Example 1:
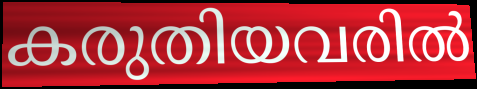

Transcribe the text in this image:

കരുതിയവരിൽ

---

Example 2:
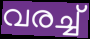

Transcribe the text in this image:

വരച്ച്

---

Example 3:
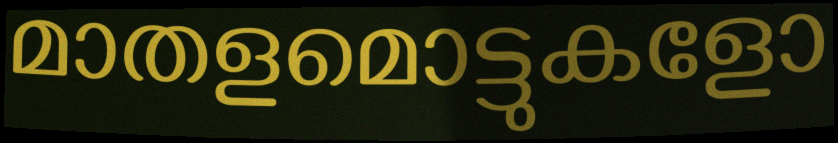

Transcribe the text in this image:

മാതളമൊട്ടുകളോ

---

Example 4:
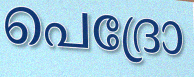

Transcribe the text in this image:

പെദ്രോ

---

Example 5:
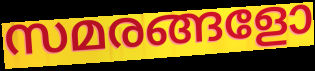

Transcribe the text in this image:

സമരങ്ങളോ